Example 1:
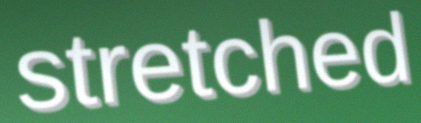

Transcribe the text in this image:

stretched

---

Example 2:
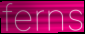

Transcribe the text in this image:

ferns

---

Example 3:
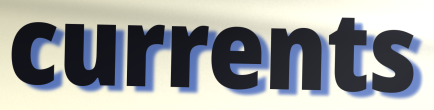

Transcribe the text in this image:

currents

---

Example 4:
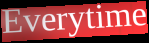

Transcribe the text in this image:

Everytime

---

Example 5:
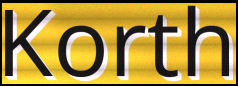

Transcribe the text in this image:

Korth